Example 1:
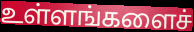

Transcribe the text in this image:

உள்ளங்களைச்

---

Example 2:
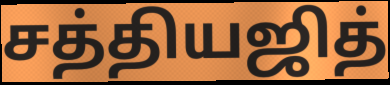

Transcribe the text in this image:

சத்தியஜித்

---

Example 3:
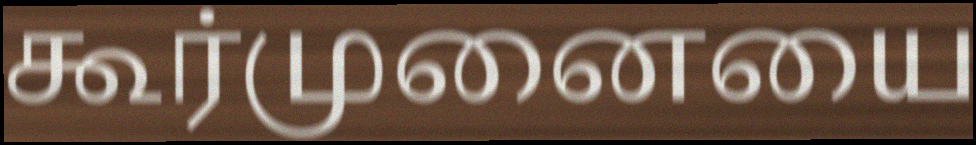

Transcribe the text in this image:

கூர்முனையை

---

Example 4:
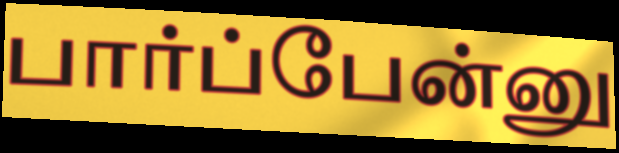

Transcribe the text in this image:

பார்ப்பேன்னு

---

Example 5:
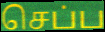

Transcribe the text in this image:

செப்ப